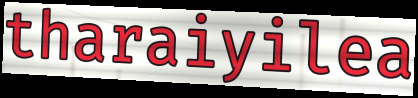
tharaiyilea